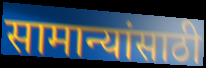
सामान्यांसाठी